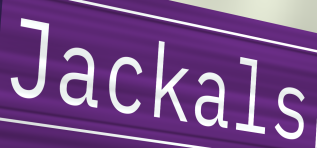
Jackals